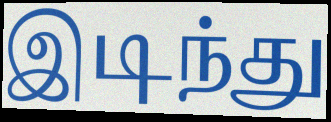
இடிந்து